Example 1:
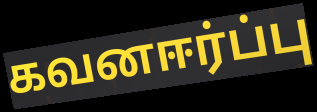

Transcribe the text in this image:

கவனஈர்ப்பு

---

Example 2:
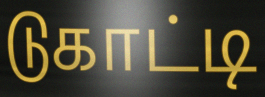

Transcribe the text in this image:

டுகாட்டி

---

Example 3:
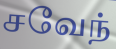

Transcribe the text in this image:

சவேந்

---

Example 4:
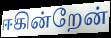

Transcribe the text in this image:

ஈகின்றேன்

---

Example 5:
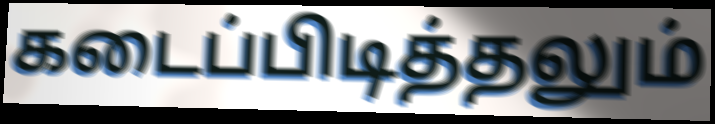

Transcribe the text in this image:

கடைப்பிடித்தலும்